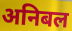
अनिबल